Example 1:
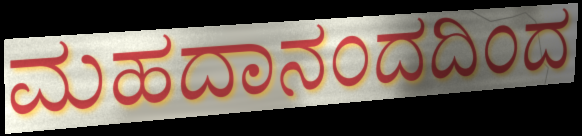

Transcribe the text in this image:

ಮಹದಾನಂದದಿಂದ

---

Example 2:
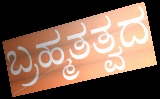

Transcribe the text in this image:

ಬ್ರಹ್ಮತತ್ವದ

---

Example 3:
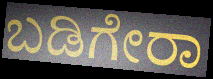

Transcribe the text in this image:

ಬಡಿಗೇರಾ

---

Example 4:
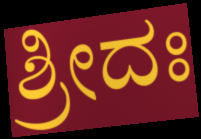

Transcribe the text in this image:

ಶ್ರೀದಃ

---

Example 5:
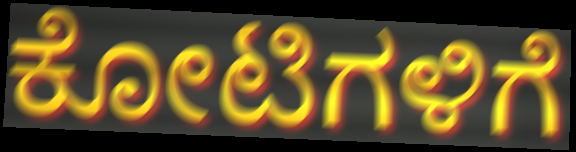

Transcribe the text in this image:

ಕೋಟಿಗಳಿಗೆ